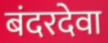
बंदरदेवा